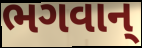
ભગવાન્